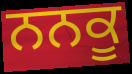
ਨਨਕੂ